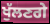
ਖੁੱਲਣਗੇ